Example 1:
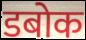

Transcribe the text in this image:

डबोक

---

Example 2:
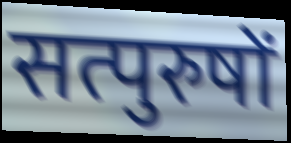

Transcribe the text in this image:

सत्पुरुषों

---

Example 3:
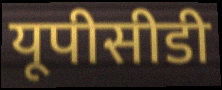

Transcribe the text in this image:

यूपीसीडी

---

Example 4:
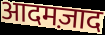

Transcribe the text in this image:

आदमज़ाद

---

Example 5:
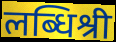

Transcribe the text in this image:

लब्धिश्री